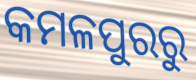
କମଳପୁରରୁ